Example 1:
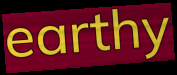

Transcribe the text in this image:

earthy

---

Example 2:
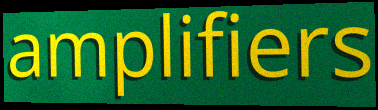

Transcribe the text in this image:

amplifiers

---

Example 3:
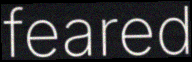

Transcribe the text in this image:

feared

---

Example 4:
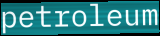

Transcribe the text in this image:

petroleum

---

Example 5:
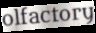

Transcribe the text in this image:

olfactory